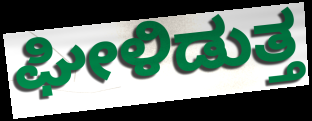
ಘೀಳಿಡುತ್ತ